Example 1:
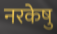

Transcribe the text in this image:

नरकेषु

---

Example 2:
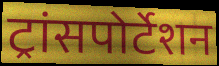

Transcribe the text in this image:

ट्रांसपोर्टेशन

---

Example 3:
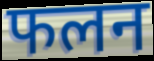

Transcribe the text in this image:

फलन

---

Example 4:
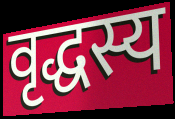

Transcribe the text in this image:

वृद्धस्य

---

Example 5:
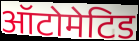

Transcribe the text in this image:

ऑटोमेटिड